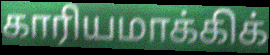
காரியமாக்கிக்